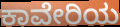
ಕಾವೇರಿಯ